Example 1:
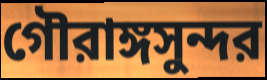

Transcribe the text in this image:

গৌরাঙ্গসুন্দর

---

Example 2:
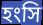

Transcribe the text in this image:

হংসি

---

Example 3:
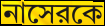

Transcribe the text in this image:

নাসেরকে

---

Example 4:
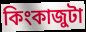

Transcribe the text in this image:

কিংকাজুটা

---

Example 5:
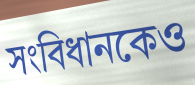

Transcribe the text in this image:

সংবিধানকেও